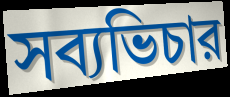
সব্যভিচার